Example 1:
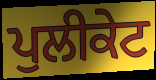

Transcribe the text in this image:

ਪੁਲੀਕੇਟ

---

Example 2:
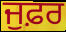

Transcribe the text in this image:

ਜੁਫ਼ਰ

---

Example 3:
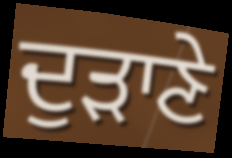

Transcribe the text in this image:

ਦੁੜਾਣੇ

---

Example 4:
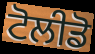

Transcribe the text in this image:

ਟੋਲੀਡੋ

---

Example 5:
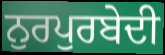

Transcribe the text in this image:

ਨੁਰਪੁਰਬੇਦੀ